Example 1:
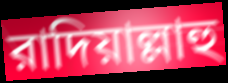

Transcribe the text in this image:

রাদিয়াল্লাহু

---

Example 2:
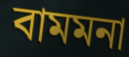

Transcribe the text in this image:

বামমনা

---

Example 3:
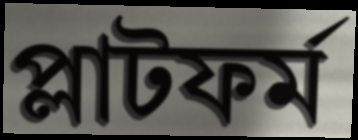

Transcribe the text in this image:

প্লাটফর্ম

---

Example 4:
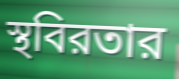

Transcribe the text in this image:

স্থবিরতার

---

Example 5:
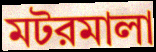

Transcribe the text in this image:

মটরমালা